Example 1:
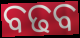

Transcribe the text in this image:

ବଢବ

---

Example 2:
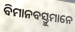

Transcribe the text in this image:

ବିମାନବସ୍ତୁମାନେ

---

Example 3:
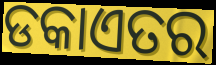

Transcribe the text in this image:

ଡକାଏତର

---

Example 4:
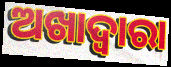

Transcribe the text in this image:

ଅଖାଦ୍ୱାରା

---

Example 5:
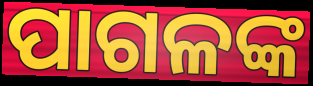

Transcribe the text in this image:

ପାଗଳଙ୍କ